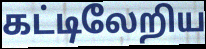
கட்டிலேறிய